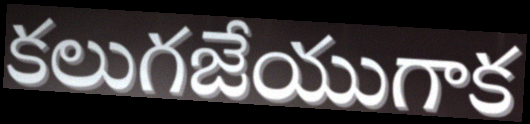
కలుగజేయుగాక